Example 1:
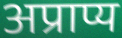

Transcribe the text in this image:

अप्राप्य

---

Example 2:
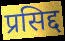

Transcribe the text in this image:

प्रसिद्द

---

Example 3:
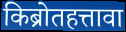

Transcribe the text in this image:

किब्रोतहत्तावा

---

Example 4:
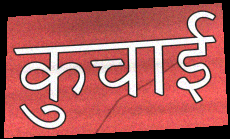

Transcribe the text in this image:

कुचाई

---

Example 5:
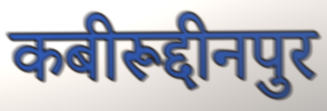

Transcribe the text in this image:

कबीरूद्दीनपुर